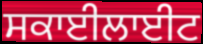
ਸਕਾਈਲਾਈਟ